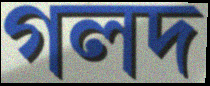
গলদ